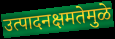
उत्पादनक्षमतेमुळे